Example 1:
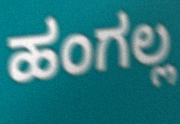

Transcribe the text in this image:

ಹಂಗಲ್ಲ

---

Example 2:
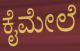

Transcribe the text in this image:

ಕೈಮೇಲೆ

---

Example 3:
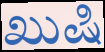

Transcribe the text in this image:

ಖುಷಿ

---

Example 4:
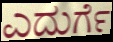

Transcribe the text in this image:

ಎದುರ್ಗೆ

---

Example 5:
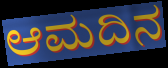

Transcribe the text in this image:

ಆಮದಿನ